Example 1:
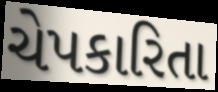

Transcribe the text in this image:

ચેપકારિતા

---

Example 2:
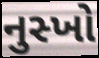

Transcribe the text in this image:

નુસ્ખો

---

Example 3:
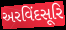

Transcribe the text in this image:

અરવિંદસૂરિ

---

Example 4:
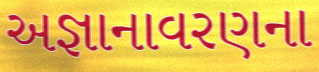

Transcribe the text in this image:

અજ્ઞાનાવરણના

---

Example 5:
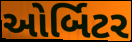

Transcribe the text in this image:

ઓર્બિટર